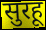
सुरहू